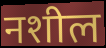
नशील